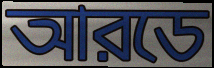
আরডে